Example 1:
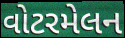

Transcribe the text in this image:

વોટરમેલન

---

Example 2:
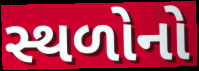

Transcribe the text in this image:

સ્થળોનો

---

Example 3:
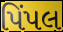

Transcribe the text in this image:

પિંપલ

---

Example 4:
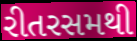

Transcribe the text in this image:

રીતરસમથી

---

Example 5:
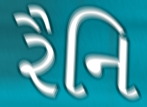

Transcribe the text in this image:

રૈનિ